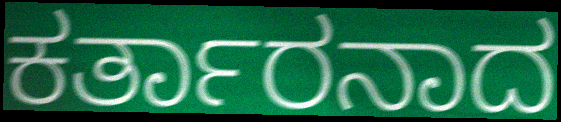
ಕರ್ತಾರನಾದ